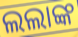
ଲଲାଙ୍କ